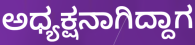
ಅಧ್ಯಕ್ಷನಾಗಿದ್ದಾಗ